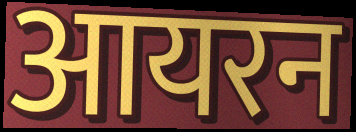
आयरन